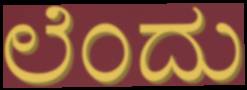
ಲೆಂದು